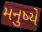
મનુષ્યે